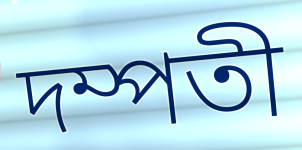
দম্পতী